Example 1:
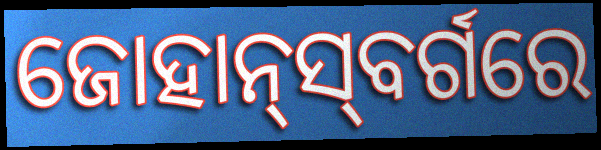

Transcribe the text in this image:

ଜୋହାନ୍‌ସ୍‌ବର୍ଗରେ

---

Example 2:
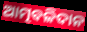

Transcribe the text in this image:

ଆତ୍ମବଳିଦାନ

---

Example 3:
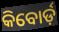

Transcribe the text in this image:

କିବୋର୍ଡ଼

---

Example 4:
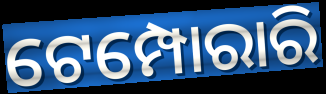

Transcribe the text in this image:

ଟେମ୍ପୋରାରି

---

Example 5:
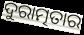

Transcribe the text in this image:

ଦୁରାତ୍ମତାର